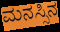
ಮನಸ್ಸಿನ